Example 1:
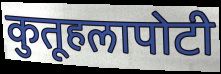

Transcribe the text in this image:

कुतूहलापोटी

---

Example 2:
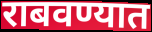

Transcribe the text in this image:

राबवण्यात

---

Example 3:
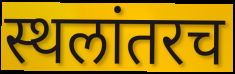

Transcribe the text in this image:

स्थलांतरच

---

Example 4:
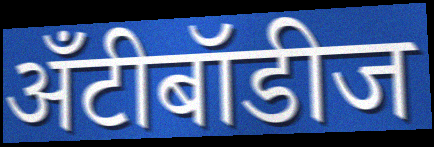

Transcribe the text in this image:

अँटीबॉडीज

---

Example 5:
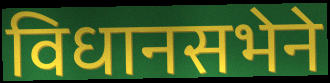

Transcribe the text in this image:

विधानसभेने